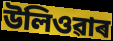
উলিওৱাৰ